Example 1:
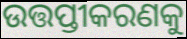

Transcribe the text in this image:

ଉତ୍ତପ୍ତୀକରଣକୁ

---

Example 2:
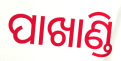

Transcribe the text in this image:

ପାଖାଣ୍ଡି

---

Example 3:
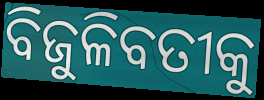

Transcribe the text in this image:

ବିଜୁଳିବତୀକୁ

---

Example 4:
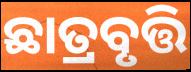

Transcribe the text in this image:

ଛାତ୍ରବୃତ୍ତି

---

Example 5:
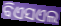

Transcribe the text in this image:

ବିଏସଏଲ